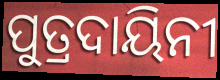
ପୁତ୍ରଦାୟିନୀ